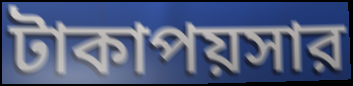
টাকাপয়সার